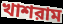
খাশরাম